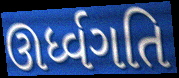
ઊર્ધ્વગતિ